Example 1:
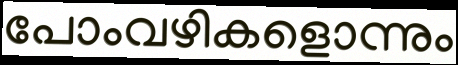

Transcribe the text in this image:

പോംവഴികളൊന്നും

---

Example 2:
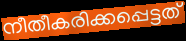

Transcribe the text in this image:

നീതീകരിക്കപ്പെട്ടത്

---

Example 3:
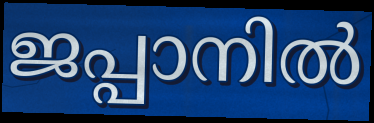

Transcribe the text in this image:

ജപ്പാനിൽ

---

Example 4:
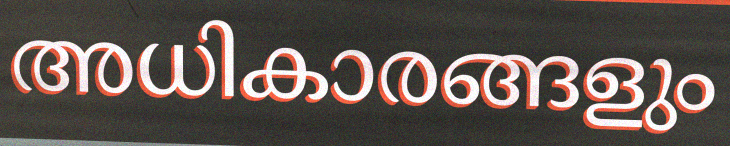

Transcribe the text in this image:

അധികാരങ്ങളും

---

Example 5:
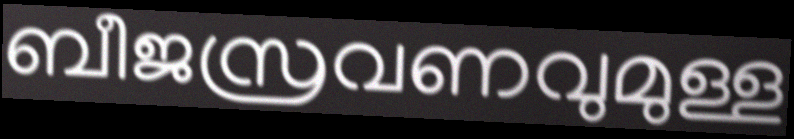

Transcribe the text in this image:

ബീജസ്രവണവുമുള്ള